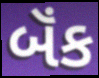
બૅંક